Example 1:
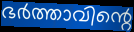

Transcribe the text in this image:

ഭർത്താവിന്റെ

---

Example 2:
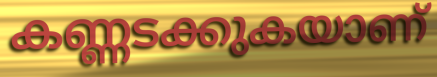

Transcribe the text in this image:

കണ്ണടക്കുകയാണ്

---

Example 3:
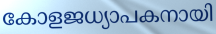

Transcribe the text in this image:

കോളജധ്യാപകനായി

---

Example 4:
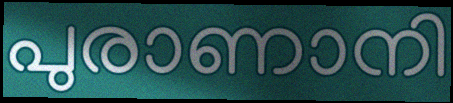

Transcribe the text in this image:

പുരാണാനി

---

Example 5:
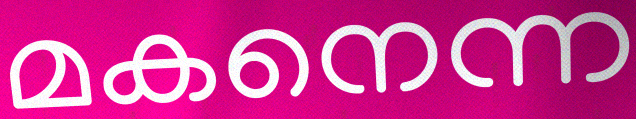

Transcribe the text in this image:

മകനെന്ന